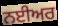
ਨਈਅਰ